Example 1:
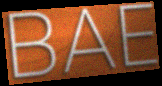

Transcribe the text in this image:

BAE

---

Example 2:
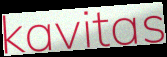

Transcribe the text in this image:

kavitas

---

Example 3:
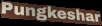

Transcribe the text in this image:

Pungkeshar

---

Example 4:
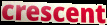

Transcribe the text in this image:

crescent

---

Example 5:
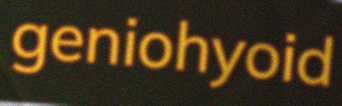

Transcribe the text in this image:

geniohyoid